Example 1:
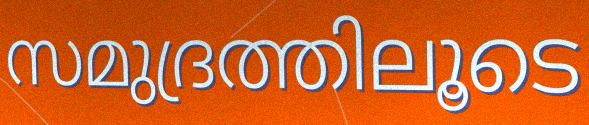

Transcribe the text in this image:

സമുദ്രത്തിലൂടെ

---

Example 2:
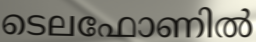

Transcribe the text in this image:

ടെലഫോണിൽ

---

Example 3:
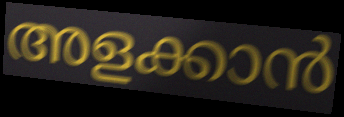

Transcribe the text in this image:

അളക്കാൻ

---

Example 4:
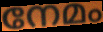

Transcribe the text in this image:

നേമം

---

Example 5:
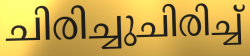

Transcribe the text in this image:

ചിരിച്ചുചിരിച്ച്